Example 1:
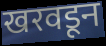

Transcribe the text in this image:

खरवडून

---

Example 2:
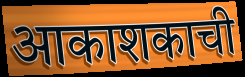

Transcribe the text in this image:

आकाशकाची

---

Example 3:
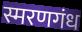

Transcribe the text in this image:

स्मरणगंध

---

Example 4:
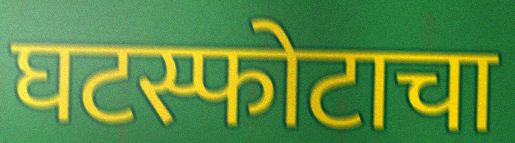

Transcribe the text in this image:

घटस्फोटाचा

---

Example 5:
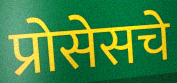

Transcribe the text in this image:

प्रोसेसचे